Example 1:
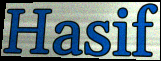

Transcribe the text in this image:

Hasif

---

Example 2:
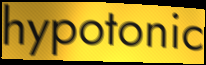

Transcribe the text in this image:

hypotonic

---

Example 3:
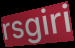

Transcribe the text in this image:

rsgiri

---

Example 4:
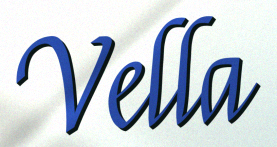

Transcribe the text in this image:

Vella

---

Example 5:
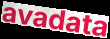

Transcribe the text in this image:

avadata